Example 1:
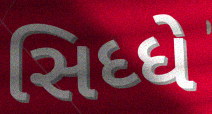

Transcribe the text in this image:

સિધ્ધે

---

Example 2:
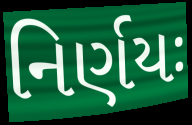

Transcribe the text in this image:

નિર્ણયઃ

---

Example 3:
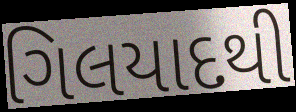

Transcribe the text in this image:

ગિલયાદથી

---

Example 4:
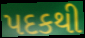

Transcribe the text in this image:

પદકથી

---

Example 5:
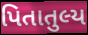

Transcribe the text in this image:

પિતાતુલ્ય